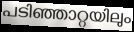
പടിഞ്ഞാറ്റയിലും